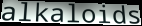
alkaloids